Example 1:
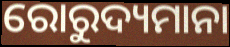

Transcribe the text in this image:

ରୋରୁଦ୍ୟମାନା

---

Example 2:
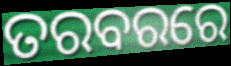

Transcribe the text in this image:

ତରବରରେ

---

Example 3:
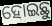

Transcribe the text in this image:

ହୋଇଛୁ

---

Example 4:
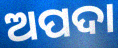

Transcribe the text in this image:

ଅପଦା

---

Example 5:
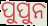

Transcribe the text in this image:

ପୁପୁନ